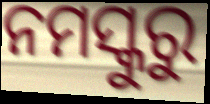
ନମସ୍କୁରୁ